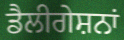
ਡੈਲੀਗੇਸ਼ਨਾਂ